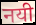
नयी